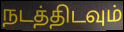
நடத்திடவும்